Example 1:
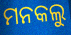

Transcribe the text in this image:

ମନକଲୁ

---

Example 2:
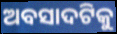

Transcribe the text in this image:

ଅବସାଦଟିକୁ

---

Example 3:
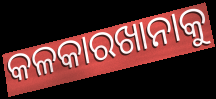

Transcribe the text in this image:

କଳକାରଖାନାକୁ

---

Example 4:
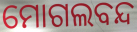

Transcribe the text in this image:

ମୋଗଲବନ୍ଦ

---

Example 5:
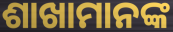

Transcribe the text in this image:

ଶାଖାମାନଙ୍କ